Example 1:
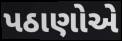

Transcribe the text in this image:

પઠાણોએ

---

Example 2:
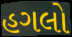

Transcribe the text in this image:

હગલો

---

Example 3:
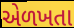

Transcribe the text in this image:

એળખતા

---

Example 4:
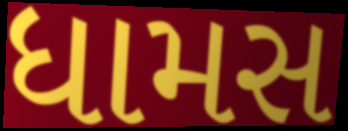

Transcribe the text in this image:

ધામસ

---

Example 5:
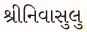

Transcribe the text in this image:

શ્રીનિવાસુલુ